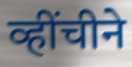
व्हींचीने